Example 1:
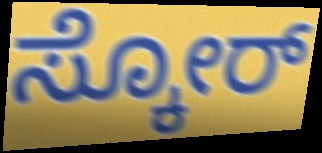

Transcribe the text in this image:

ಸ್ಕೋರ್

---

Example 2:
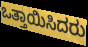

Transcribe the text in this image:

ಒತ್ತಾಯಿಸಿದರು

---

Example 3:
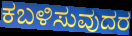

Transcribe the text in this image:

ಕಬಳಿಸುವುದರ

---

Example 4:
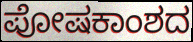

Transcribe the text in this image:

ಪೋಷಕಾಂಶದ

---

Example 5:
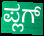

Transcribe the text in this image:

ಪ್ಲಗ್